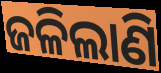
ଜଳିଲାଣି